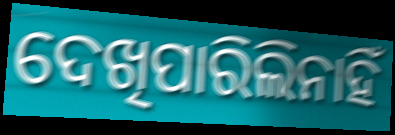
ଦେଖିପାରିଲିନାହିଁ